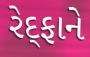
રેદ્ફાને